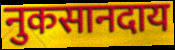
नुकसानदाय